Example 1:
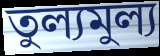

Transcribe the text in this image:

তুল্যমুল্য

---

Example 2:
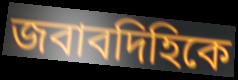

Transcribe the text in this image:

জবাবদিহিকে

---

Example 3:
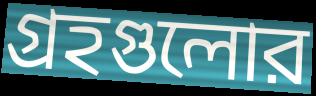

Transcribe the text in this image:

গ্রহগুলোর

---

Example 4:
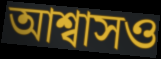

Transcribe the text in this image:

আশ্বাসও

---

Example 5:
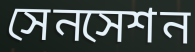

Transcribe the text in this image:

সেনসেশন